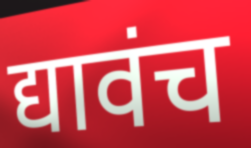
द्यावंच